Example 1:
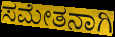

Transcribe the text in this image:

ಸಮೇತನಾಗಿ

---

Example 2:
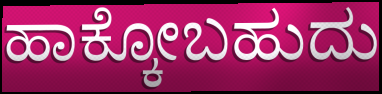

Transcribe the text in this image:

ಹಾಕ್ಕೋಬಹುದು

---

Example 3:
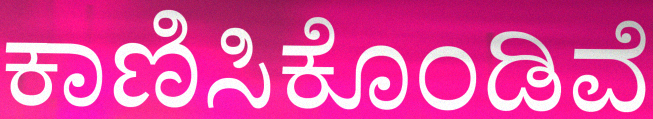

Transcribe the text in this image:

ಕಾಣಿಸಿಕೊಂಡಿವೆ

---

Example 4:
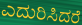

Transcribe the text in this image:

ಎದುರಿಸಿದರೆ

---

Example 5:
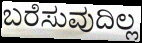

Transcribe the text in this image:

ಬರೆಸುವುದಿಲ್ಲ